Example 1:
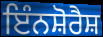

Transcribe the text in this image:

ਇੰਨਸ਼ੋਰੈਸ਼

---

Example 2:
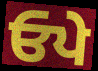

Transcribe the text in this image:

ਓਪੇ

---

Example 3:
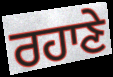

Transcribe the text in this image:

ਰਹਾਣੇ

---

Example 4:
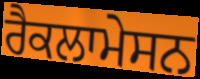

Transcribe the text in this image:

ਰੈਕਲਾਮੇਸਨ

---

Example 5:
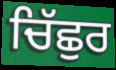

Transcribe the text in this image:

ਚਿੱਛੁਰ